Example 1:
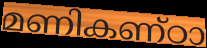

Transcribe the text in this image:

മണികണ്ഠാ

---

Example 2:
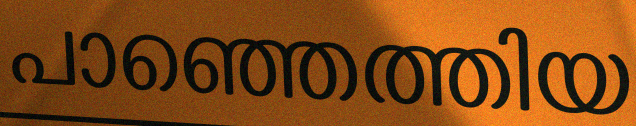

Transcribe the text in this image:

പാഞ്ഞെത്തിയ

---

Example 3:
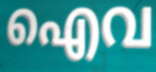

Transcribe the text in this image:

ഐവ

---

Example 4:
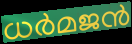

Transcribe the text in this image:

ധർമജൻ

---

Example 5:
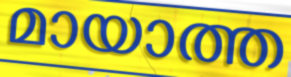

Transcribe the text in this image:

മായാത്ത